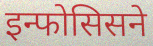
इन्फोसिसने